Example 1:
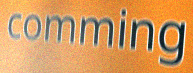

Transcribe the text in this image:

comming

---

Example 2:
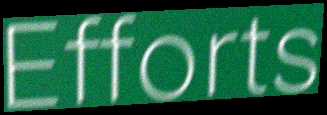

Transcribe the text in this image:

Efforts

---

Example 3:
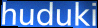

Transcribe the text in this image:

huduki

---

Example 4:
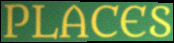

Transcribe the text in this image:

PLACES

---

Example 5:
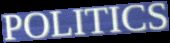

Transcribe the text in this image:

POLITICS